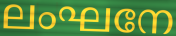
ലംഘനേ